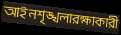
আইনশৃঙ্খলারক্ষাকারী